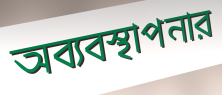
অব্যবস্থাপনার